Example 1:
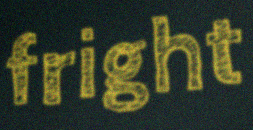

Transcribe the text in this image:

fright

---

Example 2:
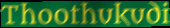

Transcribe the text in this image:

Thoothukudi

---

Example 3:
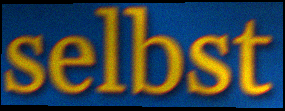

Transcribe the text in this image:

selbst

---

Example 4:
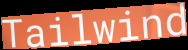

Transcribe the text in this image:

Tailwind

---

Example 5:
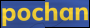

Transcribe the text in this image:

pochan